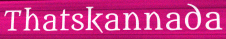
Thatskannada